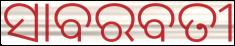
ସାବରବତୀ